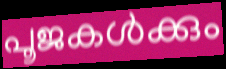
പൂജകൾക്കും